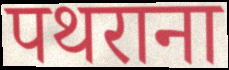
पथराना